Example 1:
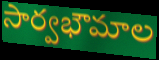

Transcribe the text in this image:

సార్వభౌమాల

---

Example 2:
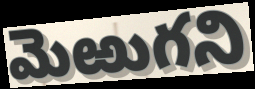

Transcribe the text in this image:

మెఱుగని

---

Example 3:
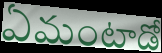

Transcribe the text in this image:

ఏమంటాడో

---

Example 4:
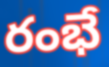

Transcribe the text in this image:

రంభే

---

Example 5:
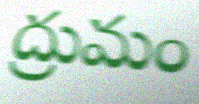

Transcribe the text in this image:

ద్రుమం